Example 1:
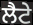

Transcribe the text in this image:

ਲੈਟੇ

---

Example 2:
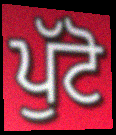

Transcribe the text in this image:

ਪੁੱਟੋ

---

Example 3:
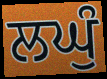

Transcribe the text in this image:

ਲਘੁੰ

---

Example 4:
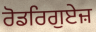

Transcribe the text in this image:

ਰੋਡਰਿਗੁਏਜ਼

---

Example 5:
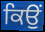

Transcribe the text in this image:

ਕਿਉੰ